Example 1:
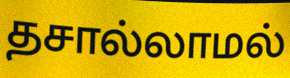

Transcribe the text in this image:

தசால்லாமல்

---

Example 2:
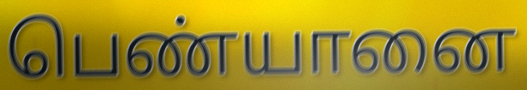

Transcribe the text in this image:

பெண்யானை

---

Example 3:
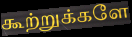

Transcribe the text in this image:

கூற்றுக்களே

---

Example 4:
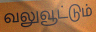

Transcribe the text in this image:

வலுவூட்டும்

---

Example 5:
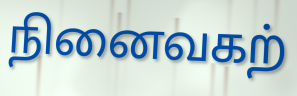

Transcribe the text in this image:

நினைவகற்